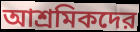
আশ্রমিকদের